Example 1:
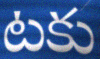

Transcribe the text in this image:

టకు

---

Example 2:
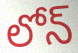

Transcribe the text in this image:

లోన్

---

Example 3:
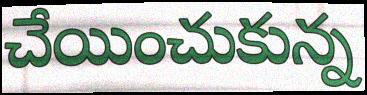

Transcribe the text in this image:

చేయించుకున్న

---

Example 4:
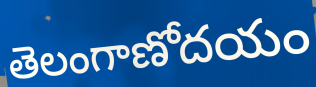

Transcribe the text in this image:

తెలంగాణోదయం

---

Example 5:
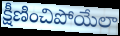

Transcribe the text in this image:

క్షీణించిపోయేలా